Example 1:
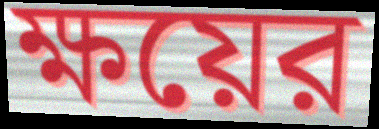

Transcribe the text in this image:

ক্ষয়ের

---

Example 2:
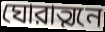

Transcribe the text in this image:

ঘোরাত্মনে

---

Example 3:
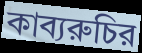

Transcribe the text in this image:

কাব্যরুচির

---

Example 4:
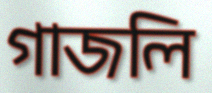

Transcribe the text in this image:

গাজলি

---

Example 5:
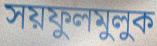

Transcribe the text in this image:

সয়ফুলমুলুক